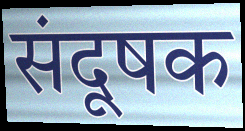
संदूषक